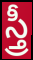
స్త్రీ